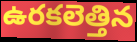
ఉరకలెత్తిన